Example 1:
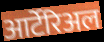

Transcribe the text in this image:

आर्टेरिअल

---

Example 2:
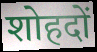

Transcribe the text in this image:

शोहदों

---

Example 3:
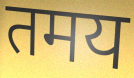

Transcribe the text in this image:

तमय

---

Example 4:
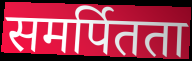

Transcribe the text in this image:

समर्पितता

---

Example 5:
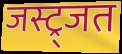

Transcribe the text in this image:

जस्ट्र्जत